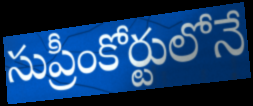
సుప్రీంకోర్టులోనే